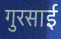
गुरसाई